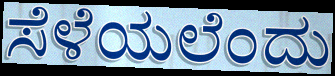
ಸೆಳೆಯಲೆಂದು